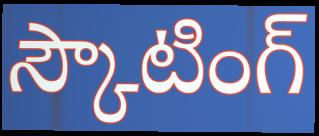
స్కౌటింగ్